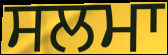
ਸਲਮਾ